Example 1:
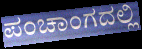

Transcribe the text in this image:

ಪಂಚಾಂಗದಲ್ಲಿ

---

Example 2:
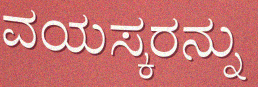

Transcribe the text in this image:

ವಯಸ್ಕರನ್ನು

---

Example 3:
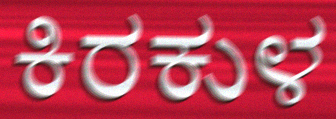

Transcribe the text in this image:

ಕಿರಕುಳ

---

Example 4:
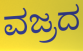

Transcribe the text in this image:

ವಜ್ರದ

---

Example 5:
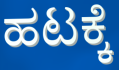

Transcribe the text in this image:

ಹಟಕ್ಕೆ